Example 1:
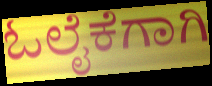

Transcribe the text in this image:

ಓಲೈಕೆಗಾಗಿ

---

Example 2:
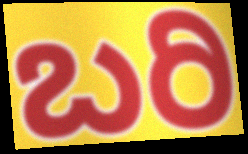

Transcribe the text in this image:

ಬರಿ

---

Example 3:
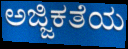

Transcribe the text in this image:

ಅಜ್ಜಿಕತೆಯ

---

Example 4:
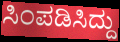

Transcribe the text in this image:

ಸಿಂಪಡಿಸಿದ್ದು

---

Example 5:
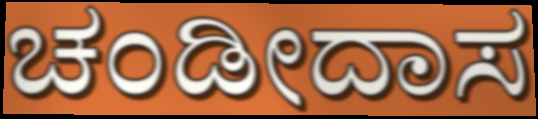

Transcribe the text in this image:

ಚಂಡೀದಾಸ